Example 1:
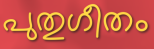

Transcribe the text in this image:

പുതുഗീതം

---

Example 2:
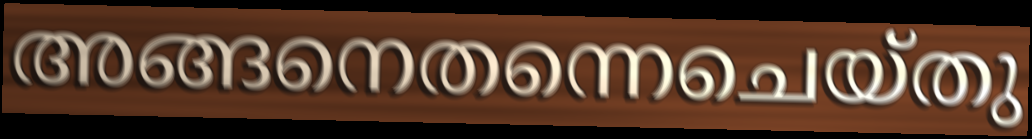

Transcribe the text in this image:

അങ്ങനെതന്നെചെയ്തു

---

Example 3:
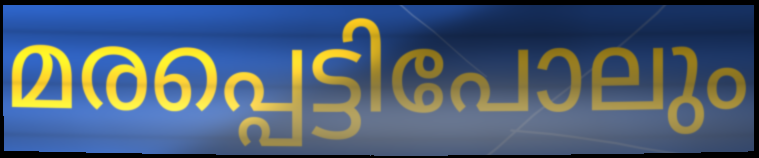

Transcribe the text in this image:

മരപ്പെട്ടിപോലും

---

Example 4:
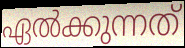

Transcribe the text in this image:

ഏൽക്കുന്നത്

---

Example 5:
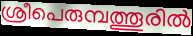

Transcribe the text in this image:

ശ്രീപെരുമ്പത്തൂരിൽ